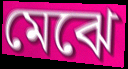
মেঝে